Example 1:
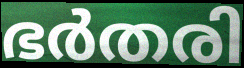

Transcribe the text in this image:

ഭർതരി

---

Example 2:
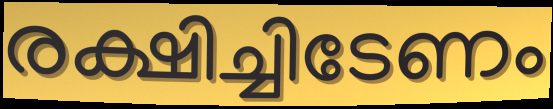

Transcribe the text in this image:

രക്ഷിച്ചിടേണം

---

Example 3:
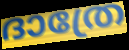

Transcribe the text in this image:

ദാത്രേ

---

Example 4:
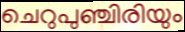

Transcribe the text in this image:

ചെറുപുഞ്ചിരിയും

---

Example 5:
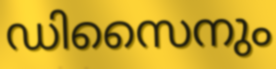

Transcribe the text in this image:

ഡിസൈനും